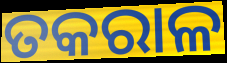
ତକରାଳ